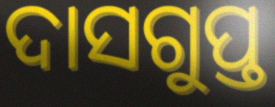
ଦାସଗୁପ୍ତ